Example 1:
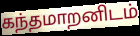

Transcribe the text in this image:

கந்தமாறனிடம்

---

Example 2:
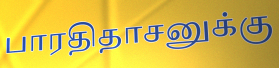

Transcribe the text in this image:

பாரதிதாசனுக்கு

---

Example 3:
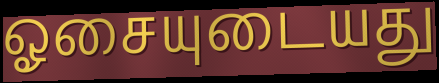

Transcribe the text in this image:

ஓசையுடையது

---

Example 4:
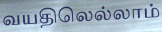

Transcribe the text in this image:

வயதிலெல்லாம்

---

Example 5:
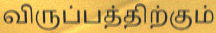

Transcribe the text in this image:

விருப்பத்திற்கும்